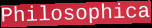
Philosophica